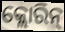
କ୍ଲୋରିନ୍